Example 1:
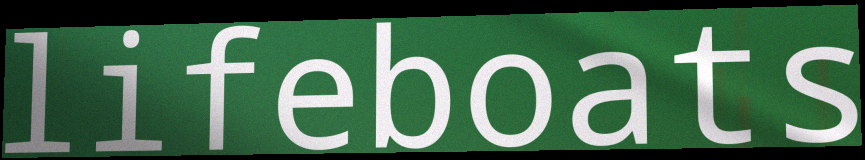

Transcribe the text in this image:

lifeboats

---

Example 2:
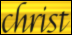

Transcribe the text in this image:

christ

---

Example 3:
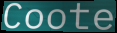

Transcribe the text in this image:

Coote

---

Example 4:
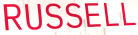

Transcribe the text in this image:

RUSSELL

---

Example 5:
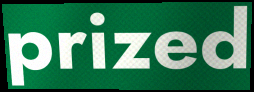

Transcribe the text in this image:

prized